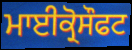
ਮਾਈਕ੍ਰੋਸੌਫਟ